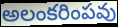
అలంకరింపవు